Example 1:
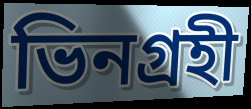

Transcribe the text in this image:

ভিনগ্রহী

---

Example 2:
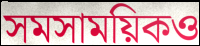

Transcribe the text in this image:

সমসাময়িকও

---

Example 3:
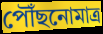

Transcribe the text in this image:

পৌঁছনোমাত্র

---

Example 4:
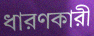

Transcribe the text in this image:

ধারণকারী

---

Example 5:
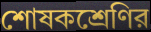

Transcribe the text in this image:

শোষকশ্রেণির